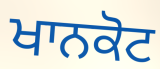
ਖਾਨਕੋਟ